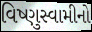
વિષ્ણુસ્વામીનો